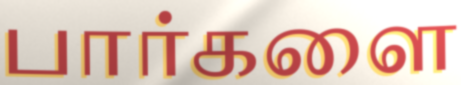
பார்களை